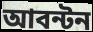
আবন্টন